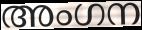
അംഗന